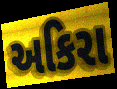
અકિરા